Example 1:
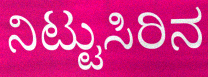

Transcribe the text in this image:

ನಿಟ್ಟುಸಿರಿನ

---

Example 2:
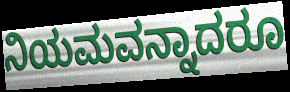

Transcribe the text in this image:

ನಿಯಮವನ್ನಾದರೂ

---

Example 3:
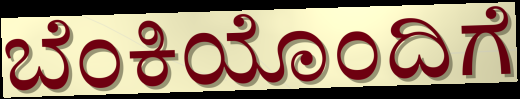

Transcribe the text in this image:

ಬೆಂಕಿಯೊಂದಿಗೆ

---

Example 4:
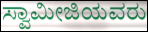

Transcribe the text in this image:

ಸ್ವಾಮೀಜಿಯವರು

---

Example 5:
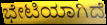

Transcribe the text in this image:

ಭೇಟಿಯಾಗಿದೆ